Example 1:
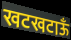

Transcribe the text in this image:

खटखटाऊँ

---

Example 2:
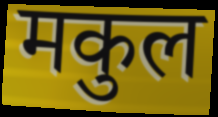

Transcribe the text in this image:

मकुल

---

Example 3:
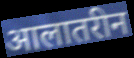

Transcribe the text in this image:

आलातरीन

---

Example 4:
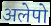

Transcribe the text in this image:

अलेपो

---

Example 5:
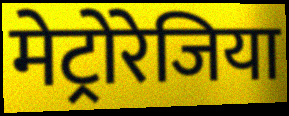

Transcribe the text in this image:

मेट्रोरेजिया